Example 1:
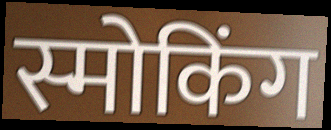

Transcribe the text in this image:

स्‍मोकिंग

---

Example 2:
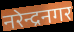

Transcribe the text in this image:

नरेन्द्रनगर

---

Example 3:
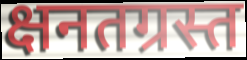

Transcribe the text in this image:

क्षनतग्रस्त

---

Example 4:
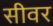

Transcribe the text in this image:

सीवर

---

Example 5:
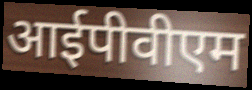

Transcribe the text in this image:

आईपीवीएम